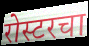
रोस्टरचा